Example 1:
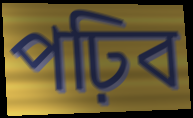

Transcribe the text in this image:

পঢ়িব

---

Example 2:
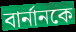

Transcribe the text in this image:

বাৰ্নানকে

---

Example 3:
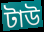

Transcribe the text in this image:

টাউ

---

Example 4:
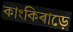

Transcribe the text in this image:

কাংকিৰাড়ে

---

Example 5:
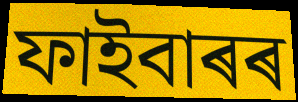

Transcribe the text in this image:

ফাইবাৰৰ